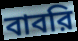
বাবরি